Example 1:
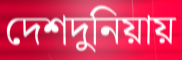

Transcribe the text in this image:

দেশদুনিয়ায়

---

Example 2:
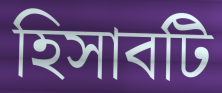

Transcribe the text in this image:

হিসাবটি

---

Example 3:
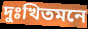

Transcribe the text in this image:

দুঃখিতমনে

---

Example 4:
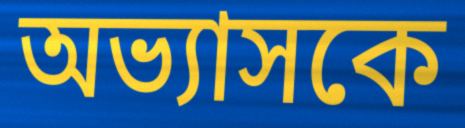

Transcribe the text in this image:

অভ্যাসকে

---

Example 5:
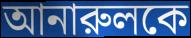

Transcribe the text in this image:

আনারুলকে